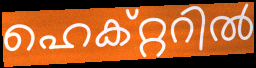
ഹെക്റ്ററിൽ